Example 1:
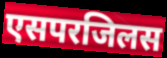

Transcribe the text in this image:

एसपरजिलस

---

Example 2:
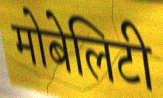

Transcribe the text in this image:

मोबेलिटी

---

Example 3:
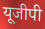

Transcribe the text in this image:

यूजीपी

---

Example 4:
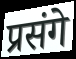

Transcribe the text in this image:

प्रसंगे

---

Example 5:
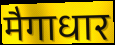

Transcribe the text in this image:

मैगाधार